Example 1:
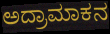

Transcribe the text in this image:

ಅದ್ರಾಮಾಕನ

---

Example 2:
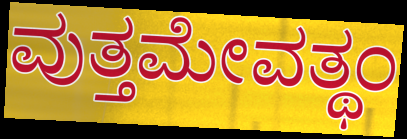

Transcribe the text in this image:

ವುತ್ತಮೇವತ್ಥಂ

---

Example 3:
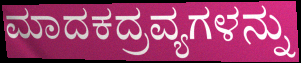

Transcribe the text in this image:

ಮಾದಕದ್ರವ್ಯಗಳನ್ನು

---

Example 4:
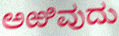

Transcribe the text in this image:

ಅಱಿವುದು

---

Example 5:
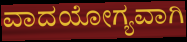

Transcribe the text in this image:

ವಾದಯೋಗ್ಯವಾಗಿ